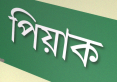
পিয়াক